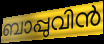
ബാപ്പുവിൻ